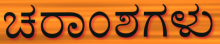
ಚರಾಂಶಗಳು